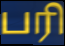
பரி